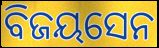
ବିଜୟସେନ